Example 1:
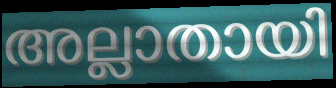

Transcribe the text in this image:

അല്ലാതായി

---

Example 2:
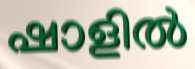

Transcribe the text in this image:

ഷാളിൽ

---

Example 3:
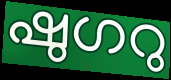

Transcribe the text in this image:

ഷുഗറു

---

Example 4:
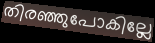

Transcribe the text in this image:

തിരഞ്ഞുപോകില്ലേ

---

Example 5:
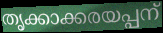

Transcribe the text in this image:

തൃക്കാക്കരയപ്പന്